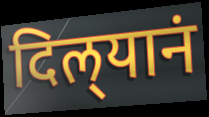
दिल्यानं